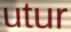
utur